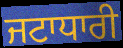
ਜਟਾਧਾਰੀ